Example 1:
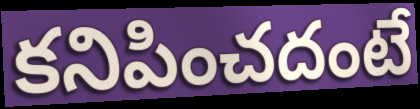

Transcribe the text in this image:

కనిపించదంటే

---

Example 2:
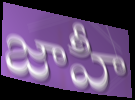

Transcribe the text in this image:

జాహీ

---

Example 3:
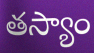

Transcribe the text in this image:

తస్యాం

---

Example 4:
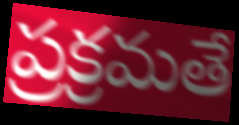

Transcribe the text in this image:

ప్రక్రమతే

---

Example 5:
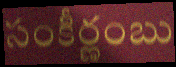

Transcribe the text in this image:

సంకీర్ణంబు